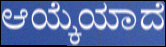
ಆಯ್ಕೆಯಾದೆ